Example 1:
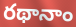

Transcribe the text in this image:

రథానాం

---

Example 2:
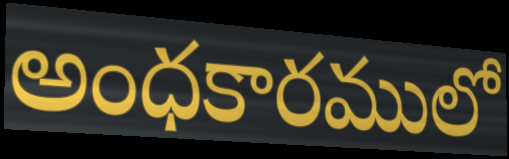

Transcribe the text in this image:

అంధకారములో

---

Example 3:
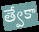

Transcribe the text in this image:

త్వేకా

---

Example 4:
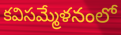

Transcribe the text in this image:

కవిసమ్మేళనంలో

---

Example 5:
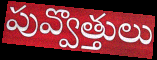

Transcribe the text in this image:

పువ్వొత్తులు